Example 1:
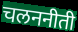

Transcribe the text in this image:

चलननीती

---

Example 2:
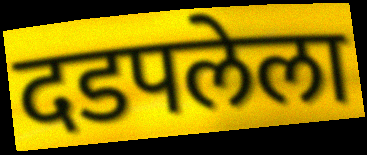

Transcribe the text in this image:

दडपलेला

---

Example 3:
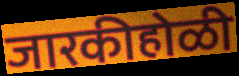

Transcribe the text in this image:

जारकीहोळी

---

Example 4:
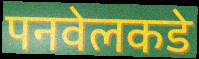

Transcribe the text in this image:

पनवेलकडे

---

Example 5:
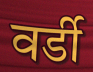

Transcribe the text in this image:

वर्डी